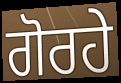
ਗੋਰਹੇ